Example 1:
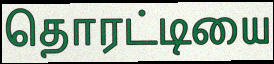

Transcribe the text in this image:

தொரட்டியை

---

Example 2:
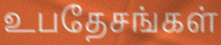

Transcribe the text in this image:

உபதேசங்கள்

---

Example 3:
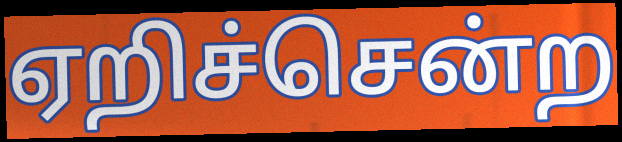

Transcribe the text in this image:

ஏறிச்சென்ற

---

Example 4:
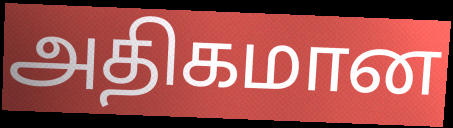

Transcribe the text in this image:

அதிகமான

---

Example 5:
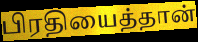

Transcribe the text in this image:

பிரதியைத்தான்